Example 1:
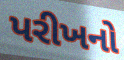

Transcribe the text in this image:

પરીખનો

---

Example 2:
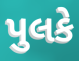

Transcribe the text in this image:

પુલકે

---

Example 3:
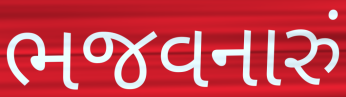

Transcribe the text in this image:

ભજવનારું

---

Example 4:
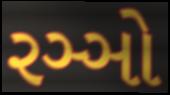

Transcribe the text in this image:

રઞ્ઞો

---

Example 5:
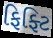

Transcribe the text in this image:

ફિફ્ટિ